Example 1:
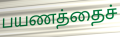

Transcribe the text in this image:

பயணத்தைச்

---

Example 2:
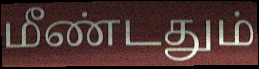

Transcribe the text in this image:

மீண்டதும்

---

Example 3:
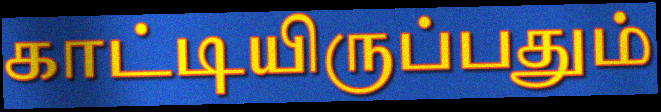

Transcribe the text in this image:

காட்டியிருப்பதும்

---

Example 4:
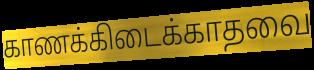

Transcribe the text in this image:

காணக்கிடைக்காதவை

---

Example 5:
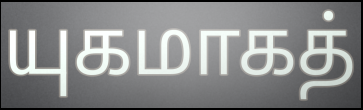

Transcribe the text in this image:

யுகமாகத்